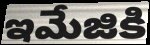
ఇమేజికి